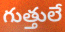
గుత్తులే